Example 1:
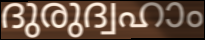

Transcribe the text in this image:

ദുരുദ്വഹാം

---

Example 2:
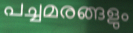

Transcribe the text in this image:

പച്ചമരങ്ങളും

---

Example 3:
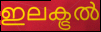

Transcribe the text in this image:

ഇലക്ട്രൽ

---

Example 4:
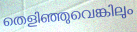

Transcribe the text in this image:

തെളിഞ്ഞുവെങ്കിലും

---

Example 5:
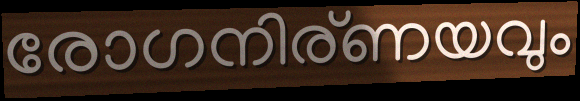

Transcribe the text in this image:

രോഗനിര്ണയവും